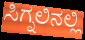
ಸಿಗ್ನಲಿನಲ್ಲಿ